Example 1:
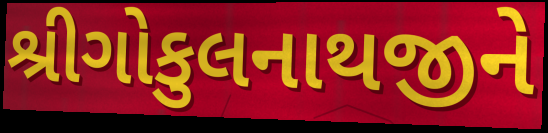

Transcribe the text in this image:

શ્રીગોકુલનાથજીને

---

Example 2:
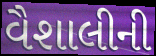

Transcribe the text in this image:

વૈશાલીની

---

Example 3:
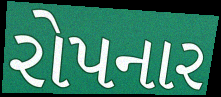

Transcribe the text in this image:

રોપનાર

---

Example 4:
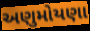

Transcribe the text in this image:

અણુમોયણા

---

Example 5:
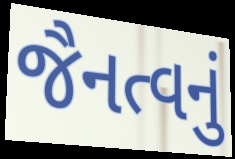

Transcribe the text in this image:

જૈનત્વનું